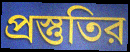
প্রস্তুতির